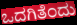
ಒದಗಿತೆಂದು